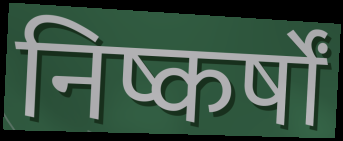
निष्कर्षों